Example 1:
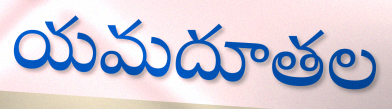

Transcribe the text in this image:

యమదూతల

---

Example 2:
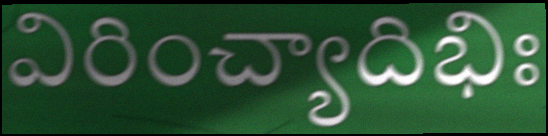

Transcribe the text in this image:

విరించ్యాదిభిః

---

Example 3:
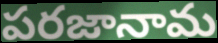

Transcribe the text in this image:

పరజానామ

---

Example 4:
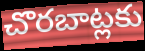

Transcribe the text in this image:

చొరబాట్లకు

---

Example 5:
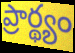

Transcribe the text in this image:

ప్రార్థ్యం